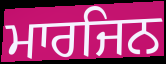
ਮਾਰਜਿਨ